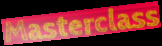
Masterclass